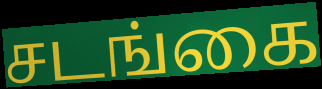
சடங்கை